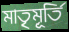
মাতৃমূর্তি